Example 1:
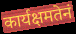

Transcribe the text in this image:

कार्यक्षमतेनं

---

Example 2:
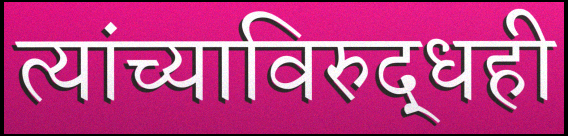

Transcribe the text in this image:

त्यांच्याविरुद्धही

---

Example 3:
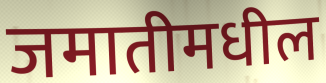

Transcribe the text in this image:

जमातीमधील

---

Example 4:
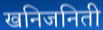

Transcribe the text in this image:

खनिजनिती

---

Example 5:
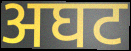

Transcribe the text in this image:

अघट